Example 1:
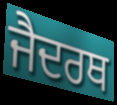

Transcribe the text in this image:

ਜੈਦਰਥ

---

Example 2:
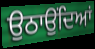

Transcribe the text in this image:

ਉਠਾਉਂਦਿਆਂ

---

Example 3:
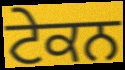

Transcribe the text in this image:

ਟੇਕਨ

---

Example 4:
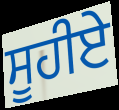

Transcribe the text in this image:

ਸੂਹੀਏ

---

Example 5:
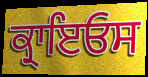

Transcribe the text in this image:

ਕ੍ਰਾਇਓਸ